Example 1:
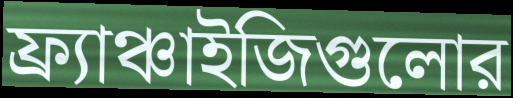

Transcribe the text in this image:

ফ্র্যাঞ্চাইজিগুলোর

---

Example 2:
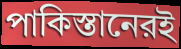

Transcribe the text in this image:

পাকিস্তানেরই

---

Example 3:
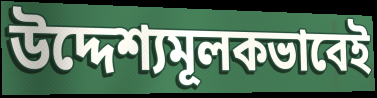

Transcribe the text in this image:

উদ্দেশ্যমূলকভাবেই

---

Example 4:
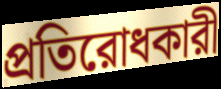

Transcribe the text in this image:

প্রতিরোধকারী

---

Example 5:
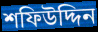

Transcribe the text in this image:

শফিউদ্দিন